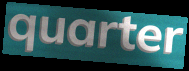
quarter